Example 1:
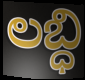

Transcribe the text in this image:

లబ్ధి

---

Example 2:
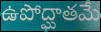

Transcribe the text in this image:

ఉపోద్ఘాతమే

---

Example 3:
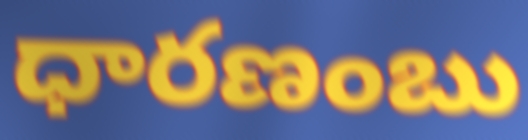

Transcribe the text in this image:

ధారణంబు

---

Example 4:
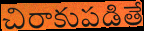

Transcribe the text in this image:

చిరాకుపడితే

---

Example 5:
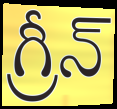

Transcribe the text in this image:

గ్రీన్